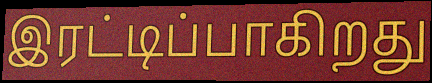
இரட்டிப்பாகிறது